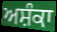
ਅਸ਼ੰਕਾ